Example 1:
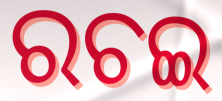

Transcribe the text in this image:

ରଚଇ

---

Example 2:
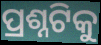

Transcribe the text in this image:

ପ୍ରଶ୍ନଟିକୁ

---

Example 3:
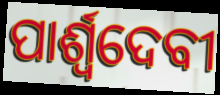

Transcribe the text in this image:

ପାର୍ଶ୍ୱଦେବୀ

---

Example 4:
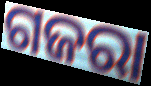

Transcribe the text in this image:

ଗଜରା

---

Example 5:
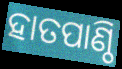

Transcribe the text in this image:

ହାତପାଣ୍ଠି